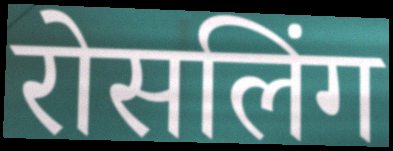
रोसलिंग